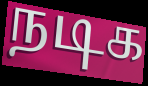
நடிக